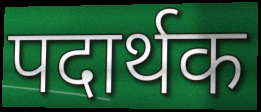
पदार्थक